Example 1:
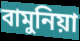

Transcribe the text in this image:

বামুনিয়া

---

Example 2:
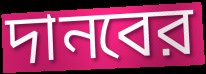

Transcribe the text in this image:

দানবের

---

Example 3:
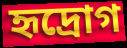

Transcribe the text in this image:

হৃদ্রোগ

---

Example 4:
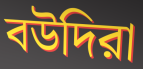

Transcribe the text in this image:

বউদিরা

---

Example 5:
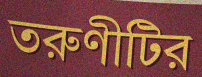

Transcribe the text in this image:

তরুণীটির